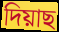
দিয়াছ